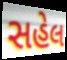
સહેલ